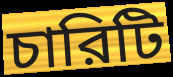
চারিটি